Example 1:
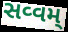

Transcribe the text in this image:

સવ્વમ્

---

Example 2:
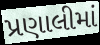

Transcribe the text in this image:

પ્રણાલીમાં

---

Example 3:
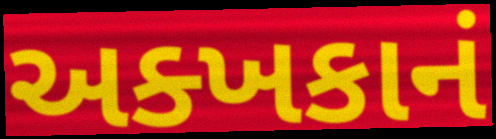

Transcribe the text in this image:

અક્ખકાનં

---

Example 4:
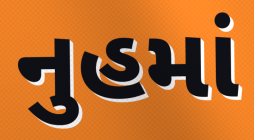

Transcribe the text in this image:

નુહમાં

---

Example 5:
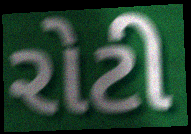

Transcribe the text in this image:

રોટી